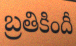
బ్రతికిందీ